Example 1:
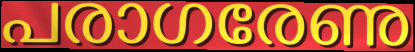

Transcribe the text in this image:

പരാഗരേണു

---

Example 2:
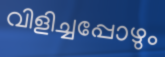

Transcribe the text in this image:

വിളിച്ചപ്പോഴും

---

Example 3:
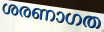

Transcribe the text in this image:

ശരണാഗത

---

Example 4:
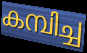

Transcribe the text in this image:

കമ്പിച്ച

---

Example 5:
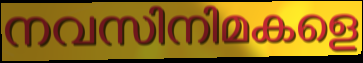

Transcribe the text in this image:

നവസിനിമകളെ